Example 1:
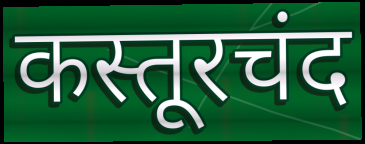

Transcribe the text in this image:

कस्तूरचंद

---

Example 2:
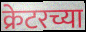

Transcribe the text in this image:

क्रेटरच्या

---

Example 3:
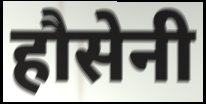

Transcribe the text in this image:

हौसेनी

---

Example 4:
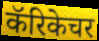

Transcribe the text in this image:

कॅरिकेचर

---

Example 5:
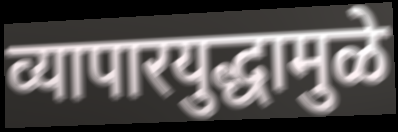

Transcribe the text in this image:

व्यापारयुद्धामुळे